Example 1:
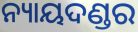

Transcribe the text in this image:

ନ୍ୟାୟଦଣ୍ଡର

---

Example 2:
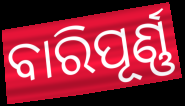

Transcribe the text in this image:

ବାରିପୂର୍ଣ୍ଣ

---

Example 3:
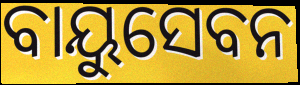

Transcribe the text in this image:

ବାୟୁସେବନ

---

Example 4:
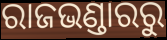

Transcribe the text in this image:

ରାଜଭଣ୍ଡାରରୁ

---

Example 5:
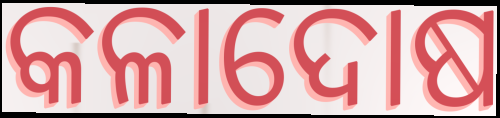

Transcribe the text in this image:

କଳାଦୋଷ